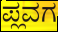
ಪ್ಲವಗ